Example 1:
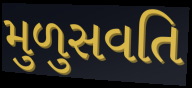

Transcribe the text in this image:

મુળુસવતિ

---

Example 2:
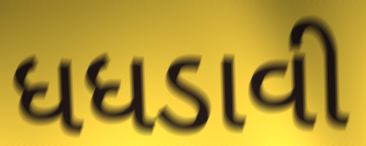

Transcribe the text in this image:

ધધડાવી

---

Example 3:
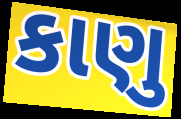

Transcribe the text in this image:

કાણુ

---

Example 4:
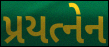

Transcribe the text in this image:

પ્રયત્નેન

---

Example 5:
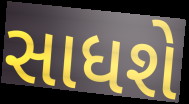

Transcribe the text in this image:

સાધશે